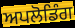
ਅਪਲੋਡਿੰਗ